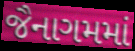
જૈનાગમમાં